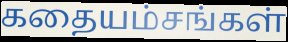
கதையம்சங்கள்